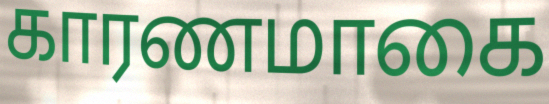
காரணமாகை